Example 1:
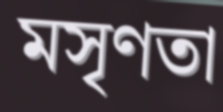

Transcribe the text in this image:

মসৃণতা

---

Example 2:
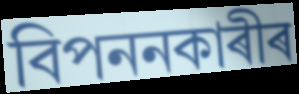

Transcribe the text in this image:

বিপননকাৰীৰ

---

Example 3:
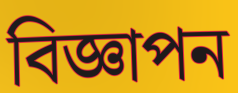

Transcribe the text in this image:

বিজ্ঞাপন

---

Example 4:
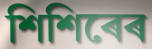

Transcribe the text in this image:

শিশিৰেৰ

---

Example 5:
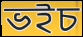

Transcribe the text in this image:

ভইচ